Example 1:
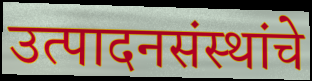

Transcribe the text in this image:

उत्पादनसंस्थांचे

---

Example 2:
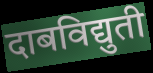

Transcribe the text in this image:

दाबविद्युती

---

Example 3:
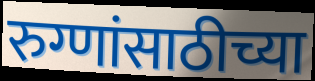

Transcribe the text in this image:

रुग्णांसाठीच्या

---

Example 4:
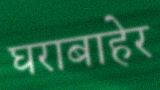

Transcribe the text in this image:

घराबाहेर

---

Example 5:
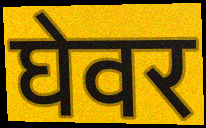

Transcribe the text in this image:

घेवर